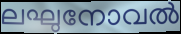
ലഘുനോവൽ